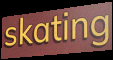
skating